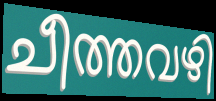
ചീത്തവഴി